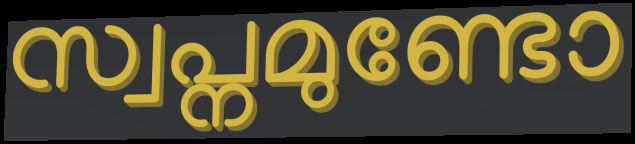
സ്വപ്നമുണ്ടോ